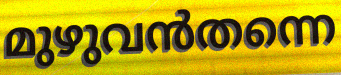
മുഴുവൻതന്നെ